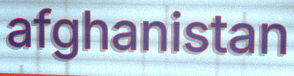
afghanistan